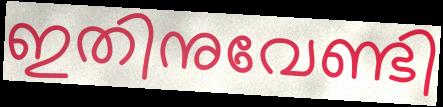
ഇതിനുവേണ്ടി